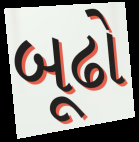
બૂઢો